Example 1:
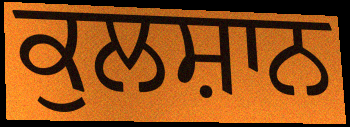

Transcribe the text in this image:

ਕੁਲਸ਼ਾਨ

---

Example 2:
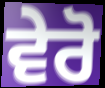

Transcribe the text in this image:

ਵੇਰੋ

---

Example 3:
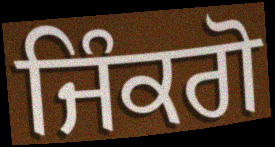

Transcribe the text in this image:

ਜਿੰਕਗੋ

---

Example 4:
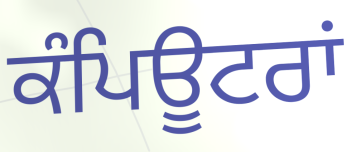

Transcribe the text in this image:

ਕੰਪਿਊਟਰਾਂ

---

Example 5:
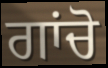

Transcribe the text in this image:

ਗਾਂਚੋ